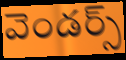
వెండర్స్